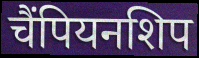
चैंपियनशिप